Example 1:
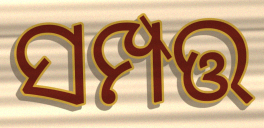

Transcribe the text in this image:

ସମ୍ପତ୍ତ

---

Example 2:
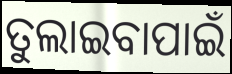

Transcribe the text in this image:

ତୁଲାଇବାପାଇଁ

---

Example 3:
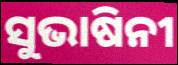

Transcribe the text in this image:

ସୁଭାଷିନୀ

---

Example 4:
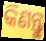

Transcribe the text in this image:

କିଣନ୍ତୁ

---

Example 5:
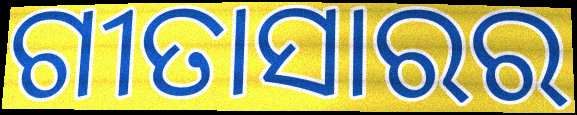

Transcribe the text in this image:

ଗୀତାସାରର